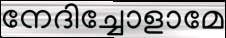
നേദിച്ചോളാമേ